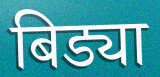
बिड्या